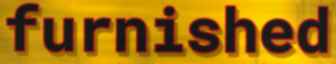
furnished